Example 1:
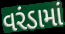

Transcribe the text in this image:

વરંડામાં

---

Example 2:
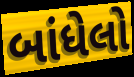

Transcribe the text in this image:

બાંધેલો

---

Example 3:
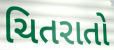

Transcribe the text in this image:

ચિતરાતો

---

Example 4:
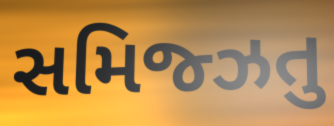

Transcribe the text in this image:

સમિજ્ઝતુ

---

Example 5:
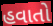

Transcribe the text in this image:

હવાતો